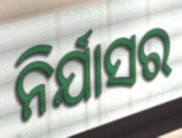
ନିର୍ଯାସର